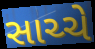
સાચ્ચે